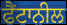
ਫੈਂਟਾਨੀਲ